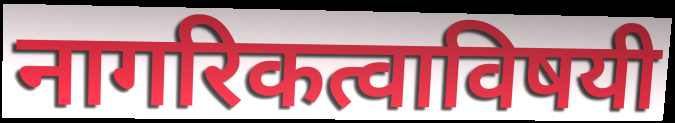
नागरिकत्वाविषयी